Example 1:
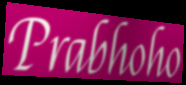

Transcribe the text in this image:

Prabhoho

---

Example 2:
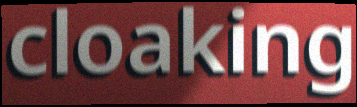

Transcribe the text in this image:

cloaking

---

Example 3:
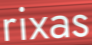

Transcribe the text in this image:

rixas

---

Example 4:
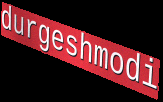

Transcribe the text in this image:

durgeshmodi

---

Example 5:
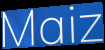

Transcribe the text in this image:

Maiz